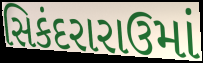
સિકંદરારાઉમાં